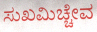
ಸುಖಮಿಚ್ಚೇವ